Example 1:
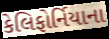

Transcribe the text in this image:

કેલિફોર્નિયાના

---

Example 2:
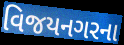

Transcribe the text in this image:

વિજયનગરના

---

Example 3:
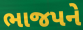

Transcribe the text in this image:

ભાજપને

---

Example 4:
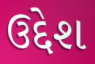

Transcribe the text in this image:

ઉદ્દેશ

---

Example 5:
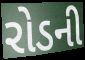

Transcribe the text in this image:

રોડની